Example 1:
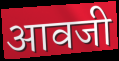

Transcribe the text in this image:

आवजी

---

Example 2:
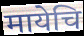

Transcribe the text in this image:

मायेचि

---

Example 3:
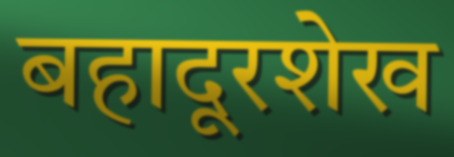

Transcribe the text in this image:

बहादूरशेख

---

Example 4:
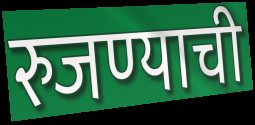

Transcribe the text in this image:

रुजण्याची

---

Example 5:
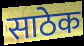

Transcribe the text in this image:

साठेक